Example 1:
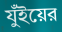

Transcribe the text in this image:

যুঁইয়ের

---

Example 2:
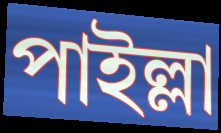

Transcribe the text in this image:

পাইল্লা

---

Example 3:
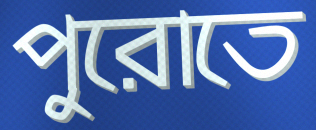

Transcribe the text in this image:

পুরোতে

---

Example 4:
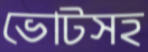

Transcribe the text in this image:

ভোটসহ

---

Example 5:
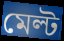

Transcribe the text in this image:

মেল্ট